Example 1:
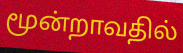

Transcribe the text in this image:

மூன்றாவதில்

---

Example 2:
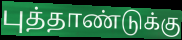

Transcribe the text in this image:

புத்தாண்டுக்கு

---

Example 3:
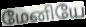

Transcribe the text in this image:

மேனியே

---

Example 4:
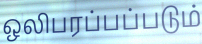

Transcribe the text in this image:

ஒலிபரப்பப்படும்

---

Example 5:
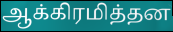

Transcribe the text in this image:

ஆக்கிரமித்தன